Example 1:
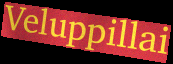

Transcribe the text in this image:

Veluppillai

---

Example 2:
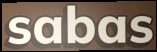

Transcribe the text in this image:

sabas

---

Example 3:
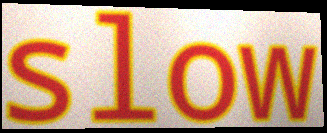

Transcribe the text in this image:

slow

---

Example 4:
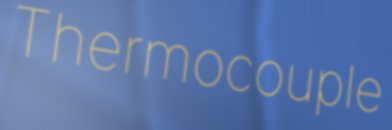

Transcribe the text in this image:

Thermocouple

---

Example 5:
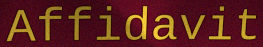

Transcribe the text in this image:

Affidavit